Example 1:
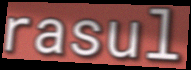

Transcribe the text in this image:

rasul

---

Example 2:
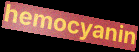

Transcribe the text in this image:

hemocyanin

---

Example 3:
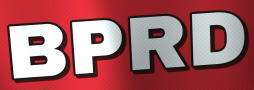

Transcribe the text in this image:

BPRD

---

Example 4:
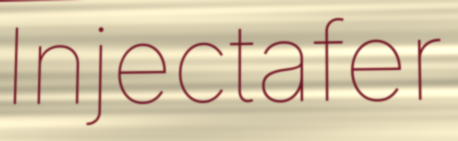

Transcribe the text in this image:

Injectafer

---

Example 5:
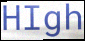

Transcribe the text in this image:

HIgh